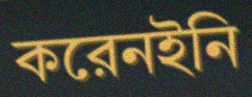
করেনইনি